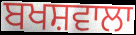
ਬਖਸ਼ਵਾਲਾ